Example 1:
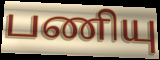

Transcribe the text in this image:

பணியு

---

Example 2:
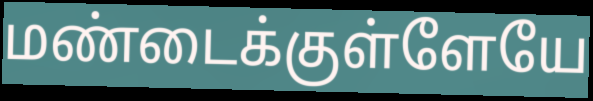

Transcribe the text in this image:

மண்டைக்குள்ளேயே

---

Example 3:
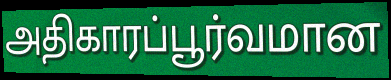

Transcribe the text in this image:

அதிகாரப்பூர்வமான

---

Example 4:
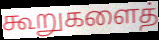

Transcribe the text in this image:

கூறுகளைத்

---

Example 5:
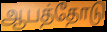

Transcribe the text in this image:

ஆபத்தோடு